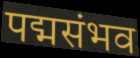
पद्मसंभव